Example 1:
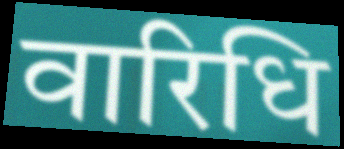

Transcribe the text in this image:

वारिधि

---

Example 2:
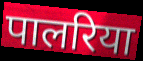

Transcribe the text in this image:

पालरिया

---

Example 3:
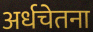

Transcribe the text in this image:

अर्धचेतना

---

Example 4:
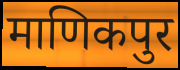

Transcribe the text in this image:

माणिकपुर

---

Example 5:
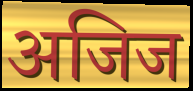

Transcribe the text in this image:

अजिज